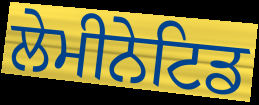
ਲੇਮੀਨੇਟਿਡ